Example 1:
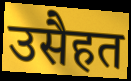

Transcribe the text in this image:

उसैहत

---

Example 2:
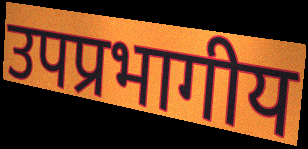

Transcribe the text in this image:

उपप्रभागीय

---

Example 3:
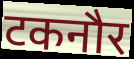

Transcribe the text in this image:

टकनौर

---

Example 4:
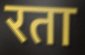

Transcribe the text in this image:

रता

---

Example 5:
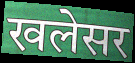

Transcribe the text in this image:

खलेसर